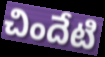
చిందేటి